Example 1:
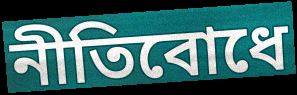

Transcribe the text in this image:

নীতিবোধে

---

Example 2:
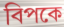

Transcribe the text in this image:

বিপকে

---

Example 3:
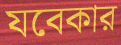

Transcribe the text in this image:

যবেকার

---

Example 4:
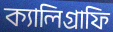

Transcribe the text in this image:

ক্যালিগ্রাফি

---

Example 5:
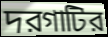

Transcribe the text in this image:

দরগাটির